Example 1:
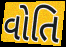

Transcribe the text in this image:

વોતિ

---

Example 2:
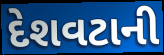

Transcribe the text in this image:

દેશવટાની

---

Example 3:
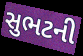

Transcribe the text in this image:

સુભટની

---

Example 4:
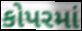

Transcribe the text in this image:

કોપરમાં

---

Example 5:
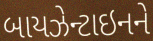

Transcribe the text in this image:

બાયઝેન્ટાઇનને